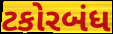
ટકોરબંધ